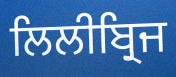
ਲਿਲੀਬ੍ਰਿਜ